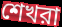
শেখরা